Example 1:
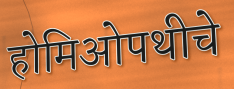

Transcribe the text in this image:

होमिओपथीचे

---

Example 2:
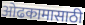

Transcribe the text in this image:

ओढकामासाठी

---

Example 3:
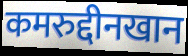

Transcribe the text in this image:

कमरुद्दीनखान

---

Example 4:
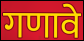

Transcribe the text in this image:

गणावे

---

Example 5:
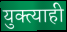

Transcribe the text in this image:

युक्त्याही